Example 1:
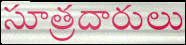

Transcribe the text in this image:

సూత్రదారులు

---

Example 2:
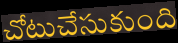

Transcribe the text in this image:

చోటుచేసుకుంది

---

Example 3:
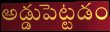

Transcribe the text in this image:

అడ్డుపెట్టడం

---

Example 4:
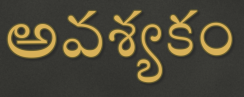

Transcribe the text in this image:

అవశ్యకం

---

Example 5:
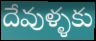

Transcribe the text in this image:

దేవుళ్ళకు